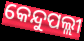
କେନ୍ଦୁପଲ୍ଲୀ